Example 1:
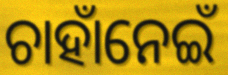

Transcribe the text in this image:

ଚାହାଁନେଇଁ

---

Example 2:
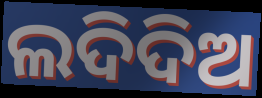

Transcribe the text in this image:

ଲଦିଦିଅ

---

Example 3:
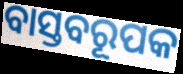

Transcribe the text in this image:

ବାସ୍ତବରୂପକ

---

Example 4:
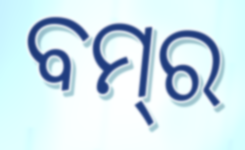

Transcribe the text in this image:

ବମ୍‌ର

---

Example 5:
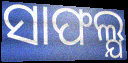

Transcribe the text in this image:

ସାଫଲ୍ଯ